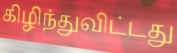
கிழிந்துவிட்டது